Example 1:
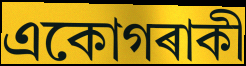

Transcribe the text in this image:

একোগৰাকী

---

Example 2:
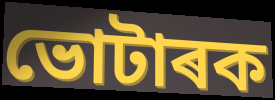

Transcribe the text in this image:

ভোটাৰক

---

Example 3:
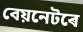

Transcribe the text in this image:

বেয়নেটৰে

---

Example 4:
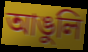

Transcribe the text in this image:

আঙুলি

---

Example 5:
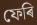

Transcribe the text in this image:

ফেৰি